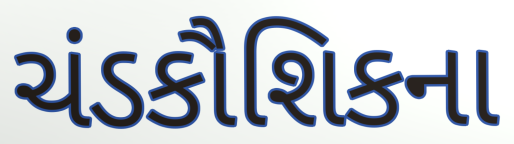
ચંડકૌશિકના